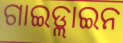
ଗାଇଡ୍ଲାଇନ